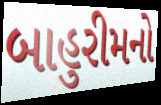
બાહુરીમનો